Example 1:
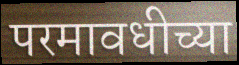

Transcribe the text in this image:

परमावधीच्या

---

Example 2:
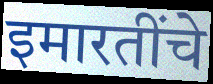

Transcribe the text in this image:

इमारतींचे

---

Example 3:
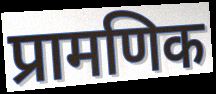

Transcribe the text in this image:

प्रामणिक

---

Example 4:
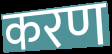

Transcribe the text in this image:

करण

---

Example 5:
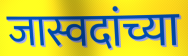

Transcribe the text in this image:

जास्वदांच्या